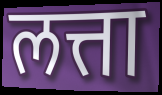
लत्ता